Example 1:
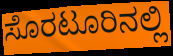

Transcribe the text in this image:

ಸೊರಟೂರಿನಲ್ಲಿ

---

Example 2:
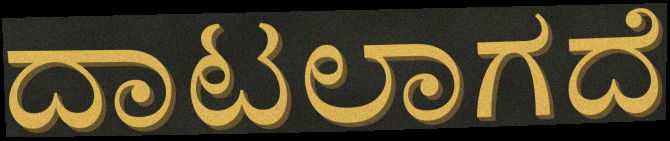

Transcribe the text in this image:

ದಾಟಲಾಗದೆ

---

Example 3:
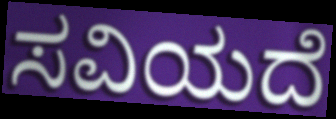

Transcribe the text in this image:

ಸವಿಯದೆ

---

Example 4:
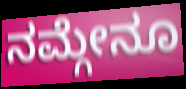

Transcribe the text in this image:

ನಮ್ಗೇನೂ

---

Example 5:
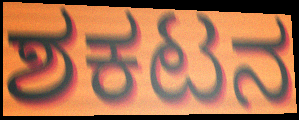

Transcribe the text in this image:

ಶಕಟನ